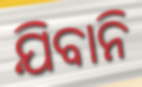
ଯିବାନି